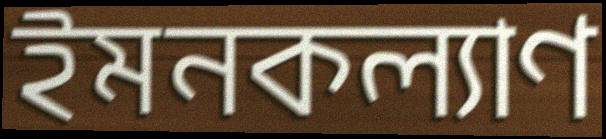
ইমনকল্যাণ